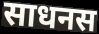
साधनस